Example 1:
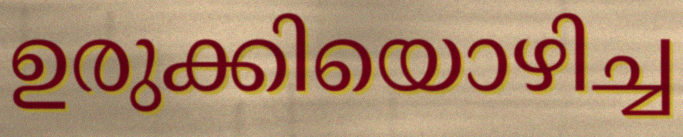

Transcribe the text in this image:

ഉരുക്കിയൊഴിച്ച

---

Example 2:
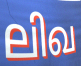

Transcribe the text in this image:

ലിഖ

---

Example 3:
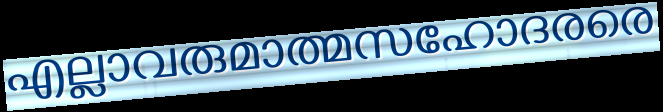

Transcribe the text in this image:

എല്ലാവരുമാത്മസഹോദരരെ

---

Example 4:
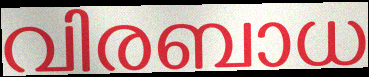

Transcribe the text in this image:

വിരബാധ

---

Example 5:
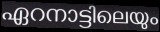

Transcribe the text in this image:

ഏറനാട്ടിലെയും